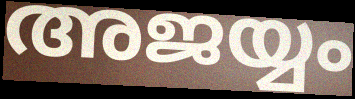
അജയ്യം